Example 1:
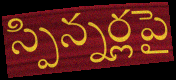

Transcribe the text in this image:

స్పిన్నర్లపై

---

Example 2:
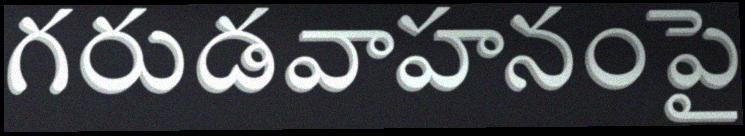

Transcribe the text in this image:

గరుడవాహనంపై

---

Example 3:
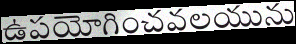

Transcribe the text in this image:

ఉపయోగించవలయును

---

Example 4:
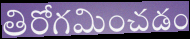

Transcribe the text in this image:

తిరోగమించడం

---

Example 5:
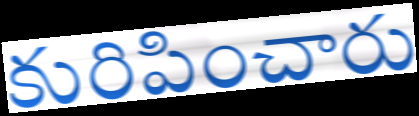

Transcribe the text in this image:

కురిపించారు